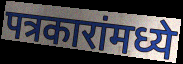
पत्रकारांमध्ये